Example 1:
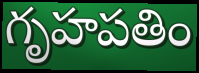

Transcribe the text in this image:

గృహపతిం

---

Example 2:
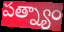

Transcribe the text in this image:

పత్న్యాం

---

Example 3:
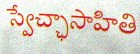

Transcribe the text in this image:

స్వేచ్ఛాసాహితి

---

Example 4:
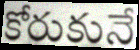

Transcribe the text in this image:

కోరుకునే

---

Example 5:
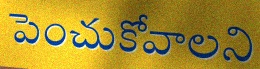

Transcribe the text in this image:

పెంచుకోవాలని